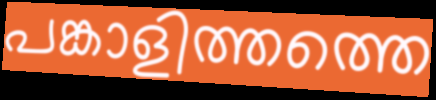
പങ്കാളിത്തത്തെ